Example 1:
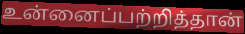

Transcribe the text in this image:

உன்னைப்பற்றித்தான்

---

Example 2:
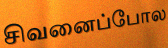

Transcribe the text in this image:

சிவனைப்போல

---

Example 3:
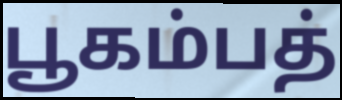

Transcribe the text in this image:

பூகம்பத்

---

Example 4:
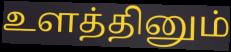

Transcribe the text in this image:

உளத்தினும்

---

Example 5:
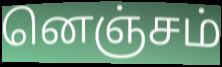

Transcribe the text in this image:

னெஞ்சம்